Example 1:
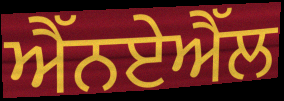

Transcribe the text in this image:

ਐੱਨਏਐੱਲ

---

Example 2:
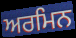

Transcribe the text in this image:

ਅਰਮਿਨ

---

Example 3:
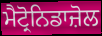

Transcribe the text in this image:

ਮੈਟ੍ਰੋਨਿਡਾਜ਼ੋਲ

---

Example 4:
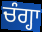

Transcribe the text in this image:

ਚੰਗ੍ਹਾ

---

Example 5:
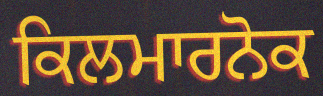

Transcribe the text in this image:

ਕਿਲਮਾਰਨੋਕ